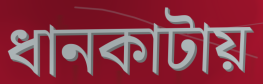
ধানকাটায়